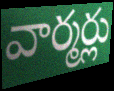
వార్మర్లు